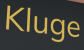
Kluge